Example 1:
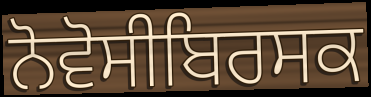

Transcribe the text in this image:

ਨੋਵੋਸੀਬਿਰਸਕ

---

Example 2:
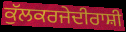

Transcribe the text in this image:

ਕੁੱਲਕਰਜੇਦੀਰਾਸ਼ੀ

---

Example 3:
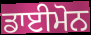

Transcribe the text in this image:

ਡਾਈਮੋਨ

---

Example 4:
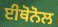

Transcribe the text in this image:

ਈਥੋਨੋਲ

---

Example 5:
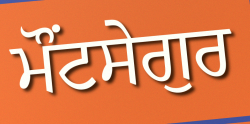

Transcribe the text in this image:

ਮੌਂਟਸੇਗੁਰ